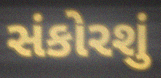
સંકોરશું